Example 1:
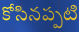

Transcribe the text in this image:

కోసినప్పటి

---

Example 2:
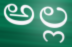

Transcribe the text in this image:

అల్ల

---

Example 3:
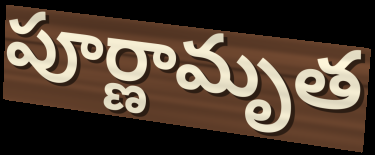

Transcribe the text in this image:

పూర్ణామృత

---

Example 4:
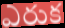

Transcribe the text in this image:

ఎరుక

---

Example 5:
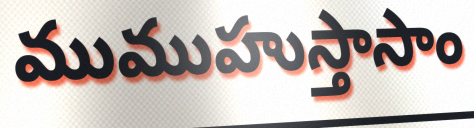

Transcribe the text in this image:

ముముహుస్తాసాం